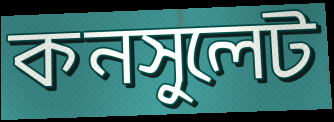
কনসুলেট